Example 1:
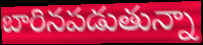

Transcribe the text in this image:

బారినపడుతున్నా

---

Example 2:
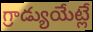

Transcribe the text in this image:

గ్రాడ్యుయేట్లే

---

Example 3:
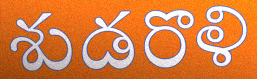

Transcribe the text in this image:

శుడరొళి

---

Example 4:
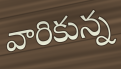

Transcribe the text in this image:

వారికున్న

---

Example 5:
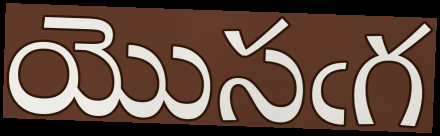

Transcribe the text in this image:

యొసఁగ